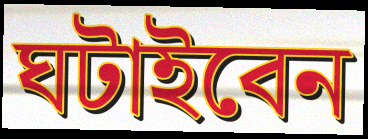
ঘটাইবেন